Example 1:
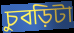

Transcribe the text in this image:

চুবড়িটা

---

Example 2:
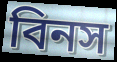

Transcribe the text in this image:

বিনস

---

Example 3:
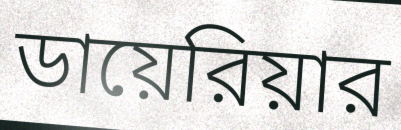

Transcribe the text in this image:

ডায়েরিয়ার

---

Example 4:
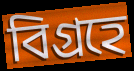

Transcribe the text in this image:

বিগ্রহে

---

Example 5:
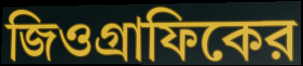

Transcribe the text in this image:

জিওগ্রাফিকের